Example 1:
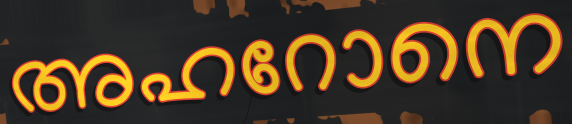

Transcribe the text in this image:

അഹറോനെ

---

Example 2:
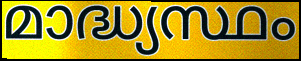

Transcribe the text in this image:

മാദ്ധ്യസ്ഥം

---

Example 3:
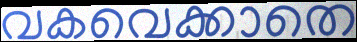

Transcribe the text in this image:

വകവെക്കാതെ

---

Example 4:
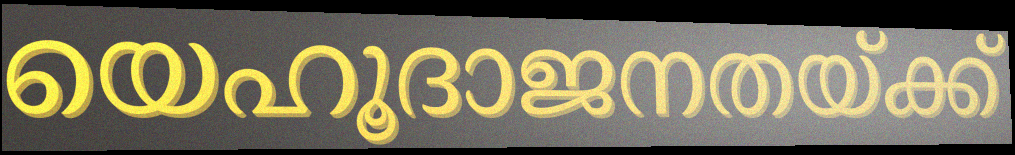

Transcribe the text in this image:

യെഹൂദാജനതയ്ക്ക്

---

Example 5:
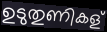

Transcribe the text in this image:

ഉടുതുണികള്